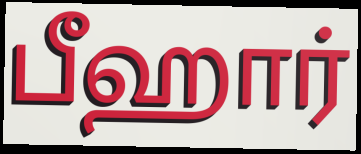
பீஹார்